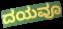
ದಯವೂ